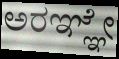
ಅರಞ್ಞೇ